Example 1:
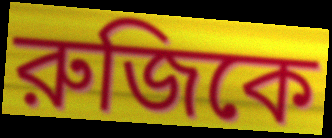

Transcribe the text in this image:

রুজিকে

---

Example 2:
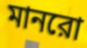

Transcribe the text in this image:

মানরো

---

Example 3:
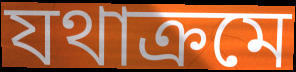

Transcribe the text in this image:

যথাক্রমে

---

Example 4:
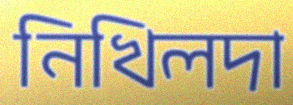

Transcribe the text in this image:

নিখিলদা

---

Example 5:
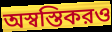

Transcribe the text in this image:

অস্বস্তিকরও